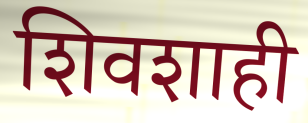
शिवशाही